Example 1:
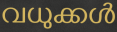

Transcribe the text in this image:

വധുക്കൾ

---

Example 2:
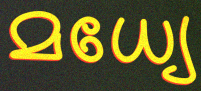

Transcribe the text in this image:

മധ്യേ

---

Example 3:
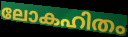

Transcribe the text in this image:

ലോകഹിതം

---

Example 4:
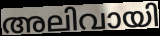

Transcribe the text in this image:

അലിവായി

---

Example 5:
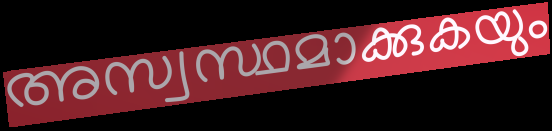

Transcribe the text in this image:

അസ്വസ്ഥമാക്കുകയും